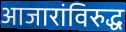
आजारांविरुद्ध